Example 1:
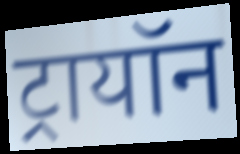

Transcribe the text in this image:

ट्रायॉन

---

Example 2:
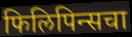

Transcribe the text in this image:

फिलिपिन्सचा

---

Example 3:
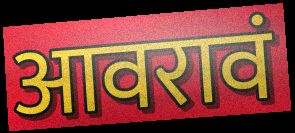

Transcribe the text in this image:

आवरावं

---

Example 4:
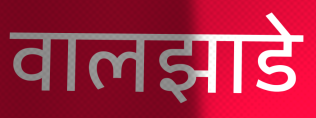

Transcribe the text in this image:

वालझाडे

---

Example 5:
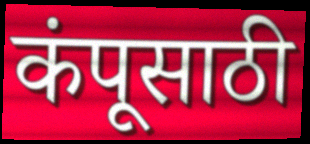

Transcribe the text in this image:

कंपूसाठी